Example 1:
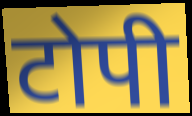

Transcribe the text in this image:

टोपी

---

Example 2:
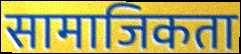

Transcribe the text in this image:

सामाजिकता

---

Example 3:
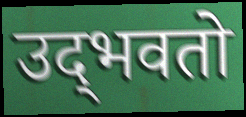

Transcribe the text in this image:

उद्‌भवतो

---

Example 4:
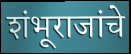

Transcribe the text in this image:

शंभूराजांचे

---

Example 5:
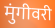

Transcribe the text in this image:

मुंगीवरी